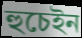
হুচেইন